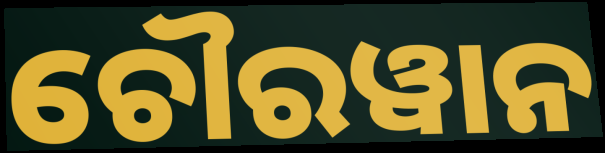
ଚୌରୱାନ